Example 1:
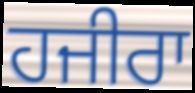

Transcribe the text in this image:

ਹਜੀਰਾ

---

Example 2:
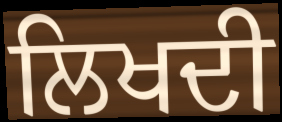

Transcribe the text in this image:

ਲਿਖਦੀ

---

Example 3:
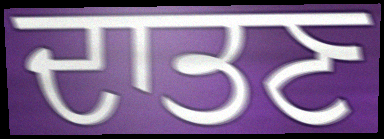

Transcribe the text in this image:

ਦਾਤਣ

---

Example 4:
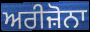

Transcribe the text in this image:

ਅਰੀਜ਼ੋਨਾ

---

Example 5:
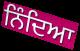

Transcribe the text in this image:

ਨਿੰਦਿਆ